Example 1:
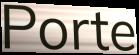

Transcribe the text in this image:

Porte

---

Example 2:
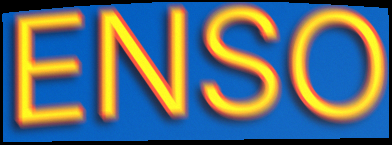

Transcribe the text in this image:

ENSO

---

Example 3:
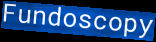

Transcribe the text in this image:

Fundoscopy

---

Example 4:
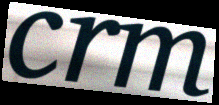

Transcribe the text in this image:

crm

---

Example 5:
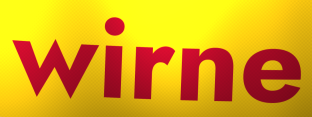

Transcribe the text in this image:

wirne